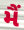
મૈં